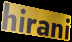
hirani